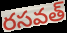
రసవత్